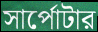
সার্পোটার